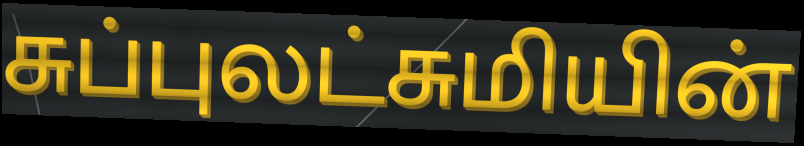
சுப்புலட்சுமியின்